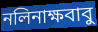
নলিনাক্ষবাবু